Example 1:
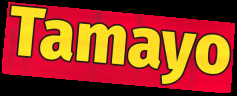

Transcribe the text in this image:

Tamayo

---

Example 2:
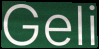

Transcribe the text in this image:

Geli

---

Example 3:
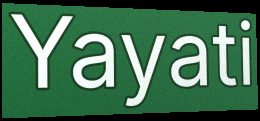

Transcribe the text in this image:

Yayati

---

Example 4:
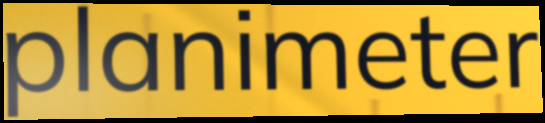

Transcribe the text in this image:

planimeter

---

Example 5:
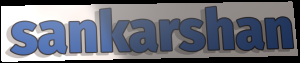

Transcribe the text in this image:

sankarshan